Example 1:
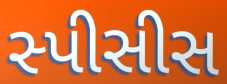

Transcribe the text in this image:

સ્પીસીસ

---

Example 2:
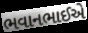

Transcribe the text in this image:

ભવાનભાઈએ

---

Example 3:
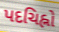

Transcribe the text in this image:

પદચિહ્નો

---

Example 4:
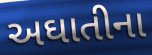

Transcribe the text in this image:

અઘાતીના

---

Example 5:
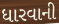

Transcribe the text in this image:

ધારવાની